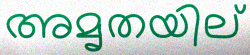
അമൃതയില്